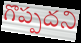
గొప్పదని